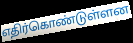
எதிர்கொண்டுள்ளன